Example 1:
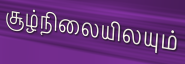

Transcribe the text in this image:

சூழ்நிலையிலயும்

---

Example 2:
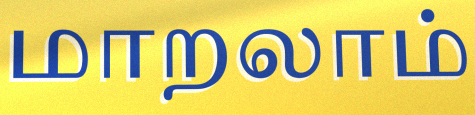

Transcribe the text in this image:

மாறலாம்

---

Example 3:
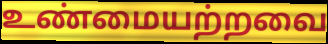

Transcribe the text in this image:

உண்மையற்றவை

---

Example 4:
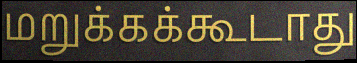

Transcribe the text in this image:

மறுக்கக்கூடாது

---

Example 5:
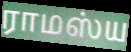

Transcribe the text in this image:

ராமஸ்ய